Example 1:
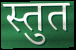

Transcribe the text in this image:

स्तुत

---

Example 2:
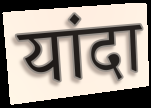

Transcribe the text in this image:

यांदा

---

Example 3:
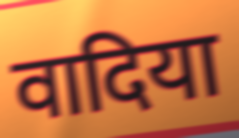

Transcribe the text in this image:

वादिया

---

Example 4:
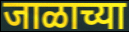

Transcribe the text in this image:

जाळाच्या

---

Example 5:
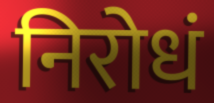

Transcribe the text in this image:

निरोधं